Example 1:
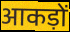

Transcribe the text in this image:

आकड़ों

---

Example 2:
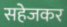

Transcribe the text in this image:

सहेजकर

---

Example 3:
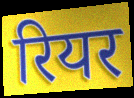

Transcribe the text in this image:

रियर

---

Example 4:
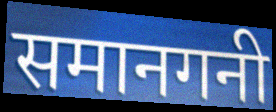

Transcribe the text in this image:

समानगनी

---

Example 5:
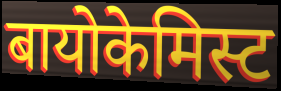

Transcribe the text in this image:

बायोकेमिस्ट